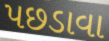
પછડાવા